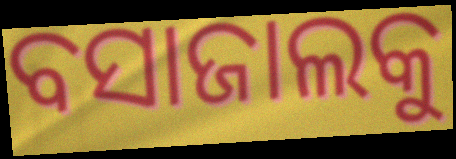
ବସାଜାଲକୁ